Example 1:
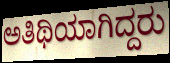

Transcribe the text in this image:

ಅತಿಥಿಯಾಗಿದ್ದರು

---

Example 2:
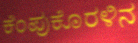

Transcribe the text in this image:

ಕೆಂಪುಕೊರಳಿನ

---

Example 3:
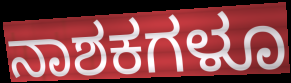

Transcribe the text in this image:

ನಾಶಕಗಳೂ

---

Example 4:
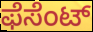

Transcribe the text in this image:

ಫೆಸೆಂಟ್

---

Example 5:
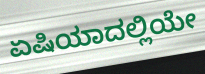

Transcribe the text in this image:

ಏಷಿಯಾದಲ್ಲಿಯೇ